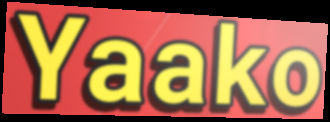
Yaako